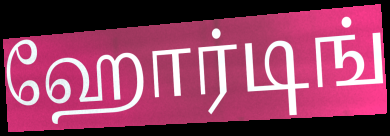
ஹோர்டிங்